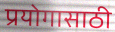
प्रयोगासाठी